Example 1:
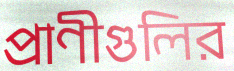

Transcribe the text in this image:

প্রাণীগুলির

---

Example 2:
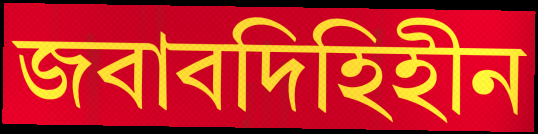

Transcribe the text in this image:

জবাবদিহিহীন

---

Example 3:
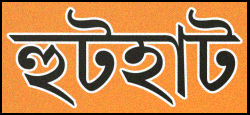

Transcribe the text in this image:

হুটহাট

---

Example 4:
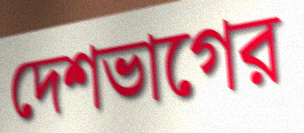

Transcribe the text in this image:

দেশভাগের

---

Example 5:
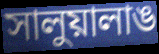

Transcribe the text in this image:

সালুয়ালাঙ